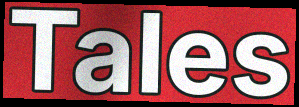
Tales